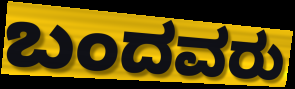
ಬಂದವರು